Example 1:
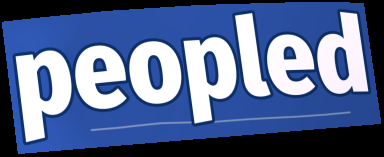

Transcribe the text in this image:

peopled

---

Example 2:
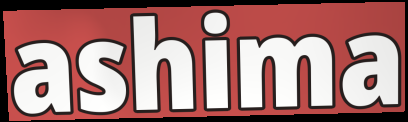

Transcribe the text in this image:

ashima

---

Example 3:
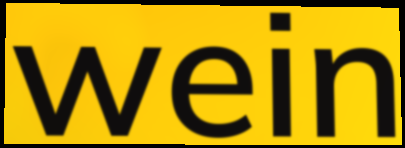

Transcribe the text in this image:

wein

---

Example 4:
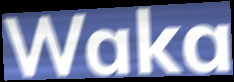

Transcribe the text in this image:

Waka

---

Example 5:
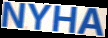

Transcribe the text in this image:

NYHA